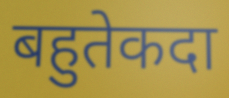
बहुतेकदा